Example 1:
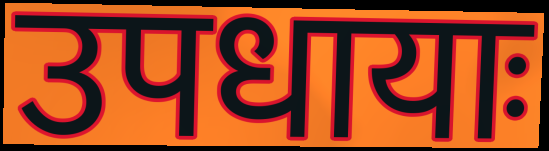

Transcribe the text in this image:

उपधायाः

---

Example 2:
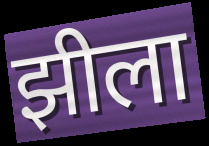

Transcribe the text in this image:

झीला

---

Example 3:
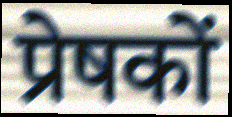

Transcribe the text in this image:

प्रेषकों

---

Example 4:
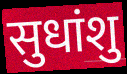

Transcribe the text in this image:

सुधांशु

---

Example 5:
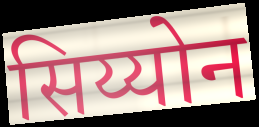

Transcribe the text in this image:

सिय्योन